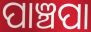
ପାଞ୍ଚପା